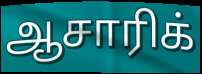
ஆசாரிக்